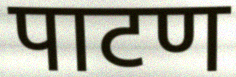
पाटण